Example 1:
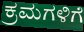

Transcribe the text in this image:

ಕ್ರಮಗಳಿಗೆ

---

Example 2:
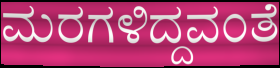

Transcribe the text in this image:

ಮರಗಳಿದ್ದವಂತೆ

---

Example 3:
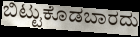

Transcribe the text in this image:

ಬಿಟ್ಟುಕೊಡಬಾರದು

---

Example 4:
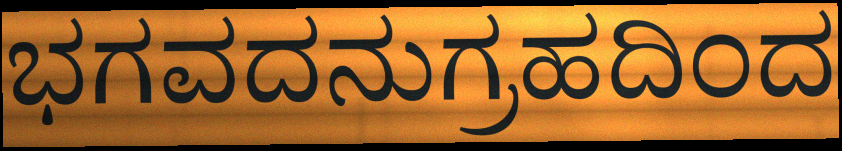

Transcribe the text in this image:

ಭಗವದನುಗ್ರಹದಿಂದ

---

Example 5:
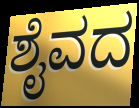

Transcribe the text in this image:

ಶೈವದ